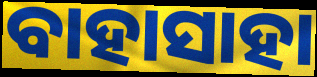
ବାହାସାହା